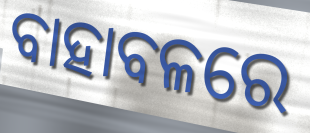
ବାହାବଳରେ